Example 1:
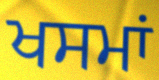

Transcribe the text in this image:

ਖਸਮਾਂ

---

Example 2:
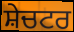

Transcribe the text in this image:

ਸ਼ੇਚਟਰ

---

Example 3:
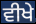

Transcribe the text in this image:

ਵੀਖੇ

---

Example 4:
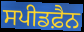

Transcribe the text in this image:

ਸਪੀਡਫ਼ੈਨ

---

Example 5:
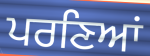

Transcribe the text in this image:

ਪਰਣਿਆਂ